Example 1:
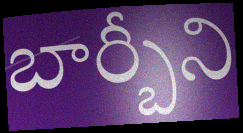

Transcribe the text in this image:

బార్బీని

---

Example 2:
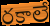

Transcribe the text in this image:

రకాలే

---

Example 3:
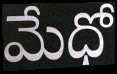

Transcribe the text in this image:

మేధో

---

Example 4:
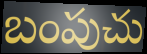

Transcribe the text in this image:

బంపుచు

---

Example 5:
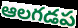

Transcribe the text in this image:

ఆలగడప